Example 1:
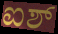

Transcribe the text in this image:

ಐಶ್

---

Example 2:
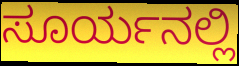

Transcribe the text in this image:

ಸೂರ್ಯನಲ್ಲಿ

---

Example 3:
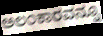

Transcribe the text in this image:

ಅಲಂಕಾರವನ್ನೂ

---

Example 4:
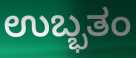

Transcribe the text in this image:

ಉಬ್ಭತಂ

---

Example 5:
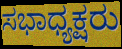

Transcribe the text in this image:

ಸಭಾಧ್ಯಕ್ಷರು